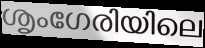
ശൃംഗേരിയിലെ